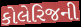
કોલેરિજની